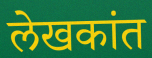
लेखकांत